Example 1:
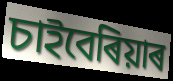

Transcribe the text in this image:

চাইবেৰিয়াৰ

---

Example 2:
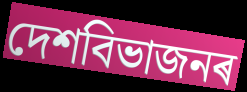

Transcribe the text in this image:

দেশবিভাজনৰ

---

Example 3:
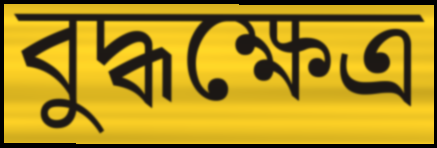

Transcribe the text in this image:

বুদ্ধক্ষেত্ৰ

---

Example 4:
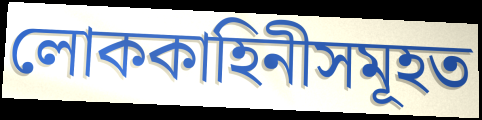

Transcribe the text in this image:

লোককাহিনীসমূহত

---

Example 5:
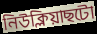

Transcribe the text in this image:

নিউক্লিয়াছটো